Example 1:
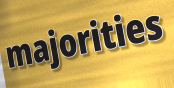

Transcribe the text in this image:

majorities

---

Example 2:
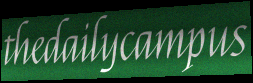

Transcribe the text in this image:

thedailycampus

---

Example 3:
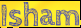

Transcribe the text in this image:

Isham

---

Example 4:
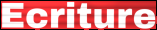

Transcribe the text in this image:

Ecriture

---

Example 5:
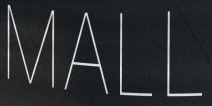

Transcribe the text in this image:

MALL